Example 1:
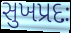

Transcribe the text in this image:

સુખપ્રદઃ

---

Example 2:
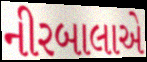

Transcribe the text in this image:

નીરબાલાએ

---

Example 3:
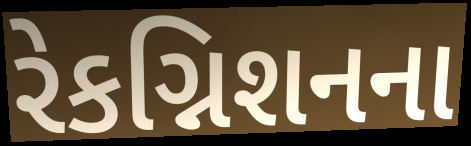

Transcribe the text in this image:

રેકગ્નિશનના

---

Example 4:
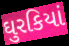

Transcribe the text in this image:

ઘુરકિયાં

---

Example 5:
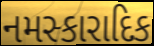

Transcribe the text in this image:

નમસ્કારાદિક